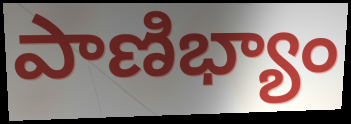
పాణిభ్యాం